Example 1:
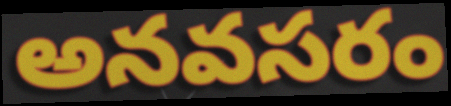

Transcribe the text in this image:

అనవసరం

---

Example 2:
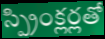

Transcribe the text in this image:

స్ప్రింక్లర్లతో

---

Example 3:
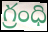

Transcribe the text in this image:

గ్రంధి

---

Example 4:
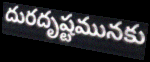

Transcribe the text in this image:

దురదృష్టమునకు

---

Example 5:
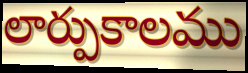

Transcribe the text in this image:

లార్పుకాలము